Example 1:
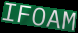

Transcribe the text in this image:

IFOAM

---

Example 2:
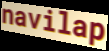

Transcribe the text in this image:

navilap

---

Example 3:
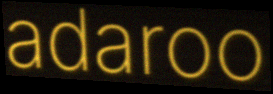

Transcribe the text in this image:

adaroo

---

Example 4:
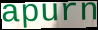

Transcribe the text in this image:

apurn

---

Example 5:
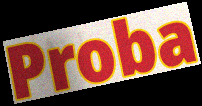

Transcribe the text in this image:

Proba